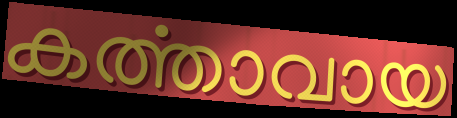
കൎത്താവായ